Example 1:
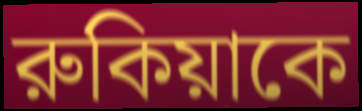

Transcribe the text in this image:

রুকিয়াকে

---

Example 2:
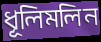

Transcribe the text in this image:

ধূলিমলিন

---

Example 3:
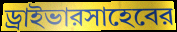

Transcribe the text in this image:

ড্রাইভারসাহেবের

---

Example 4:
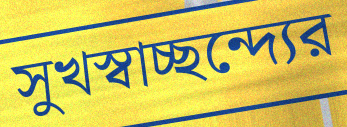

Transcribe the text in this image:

সুখস্বাচ্ছন্দ্যের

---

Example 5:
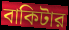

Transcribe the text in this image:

বাকিটার